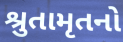
શ્રુતામૃતનો